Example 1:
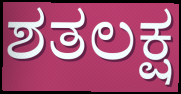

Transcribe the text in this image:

ಶತಲಕ್ಷ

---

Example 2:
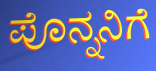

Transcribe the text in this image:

ಪೊನ್ನನಿಗೆ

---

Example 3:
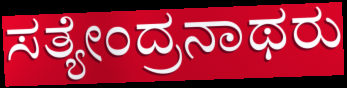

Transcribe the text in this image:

ಸತ್ಯೇಂದ್ರನಾಥರು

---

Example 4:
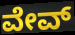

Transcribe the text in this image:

ವೇವ್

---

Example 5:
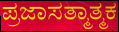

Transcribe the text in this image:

ಪ್ರಜಾಸತ್ಮಾತ್ಮಕ